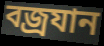
বজ্রযান